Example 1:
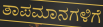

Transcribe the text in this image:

ತಾಪಮಾನಗಳಿಗೆ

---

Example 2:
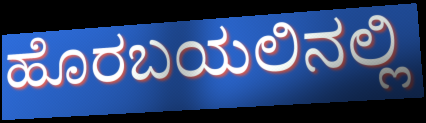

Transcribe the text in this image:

ಹೊರಬಯಲಿನಲ್ಲಿ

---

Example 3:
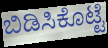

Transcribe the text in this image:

ಬಿಡಿಸಿಕೊಟ್ಟೆ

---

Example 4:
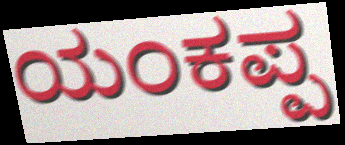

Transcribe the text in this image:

ಯಂಕಪ್ಪ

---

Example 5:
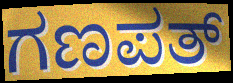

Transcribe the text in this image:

ಗಣಪತ್